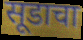
सूडाचा